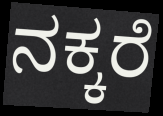
ನಕ್ಕರೆ